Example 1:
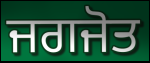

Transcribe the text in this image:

ਜਗਜੋਤ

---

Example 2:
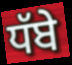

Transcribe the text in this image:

ਧੱਬੇ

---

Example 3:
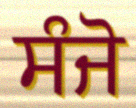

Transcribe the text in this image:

ਸੰਜੋ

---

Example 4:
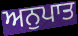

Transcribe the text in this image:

ਅਨੁਪਾਤ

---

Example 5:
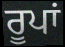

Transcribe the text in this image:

ਰੂਪਾਂ